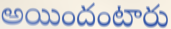
అయిందంటారు